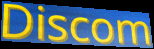
Discom